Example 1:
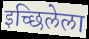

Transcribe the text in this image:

इच्छिलेला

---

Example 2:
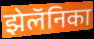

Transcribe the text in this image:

झेलॅनिका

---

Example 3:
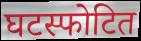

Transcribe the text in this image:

घटस्फोटित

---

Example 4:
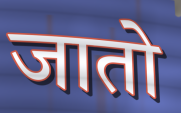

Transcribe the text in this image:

जातो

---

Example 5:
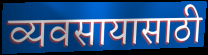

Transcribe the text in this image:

व्यवसायासाठी